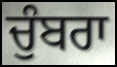
ਚੁੰਬਰਾ